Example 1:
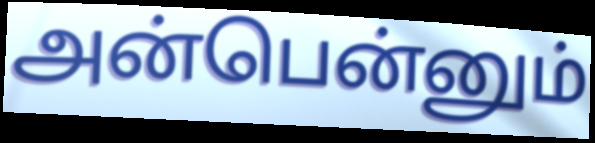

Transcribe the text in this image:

அன்பென்னும்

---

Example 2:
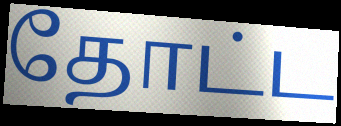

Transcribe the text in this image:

தோட்ட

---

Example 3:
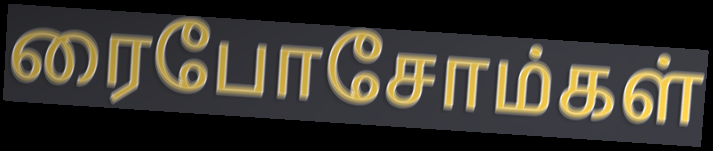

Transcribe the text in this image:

ரைபோசோம்கள்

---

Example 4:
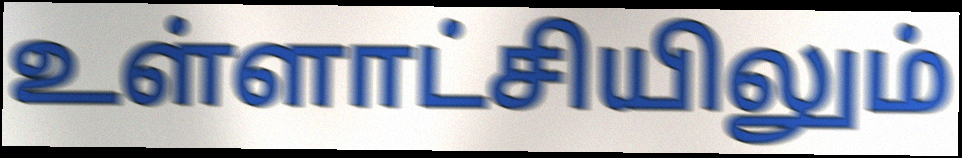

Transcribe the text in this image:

உள்ளாட்சியிலும்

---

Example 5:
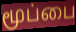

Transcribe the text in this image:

மூப்பை